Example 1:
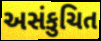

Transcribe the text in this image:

અસંકુચિત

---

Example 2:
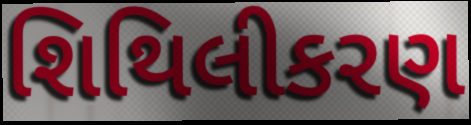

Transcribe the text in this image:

શિથિલીકરણ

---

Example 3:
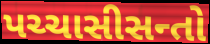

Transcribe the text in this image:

પચ્ચાસીસન્તો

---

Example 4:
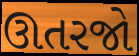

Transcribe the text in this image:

ઊતરજો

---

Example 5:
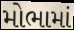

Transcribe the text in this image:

મોભામાં